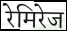
रेमिरेज